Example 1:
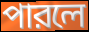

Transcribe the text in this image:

পারলে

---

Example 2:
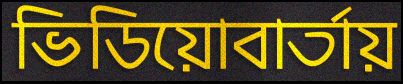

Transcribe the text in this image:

ভিডিয়োবার্তায়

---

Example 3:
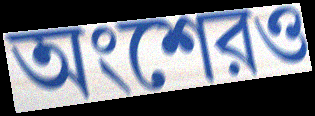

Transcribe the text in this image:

অংশেরও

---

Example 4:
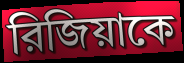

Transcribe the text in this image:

রিজিয়াকে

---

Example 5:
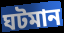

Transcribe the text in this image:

ঘটমান